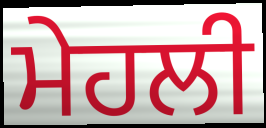
ਮੇਹਲੀ